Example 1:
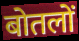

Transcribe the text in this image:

बोतलों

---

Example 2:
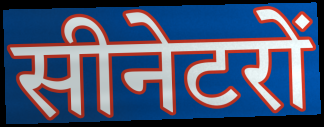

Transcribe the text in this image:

सीनेटरों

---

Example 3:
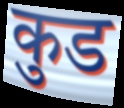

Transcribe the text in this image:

कुड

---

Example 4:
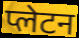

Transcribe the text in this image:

प्लेटन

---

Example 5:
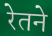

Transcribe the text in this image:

रेतने